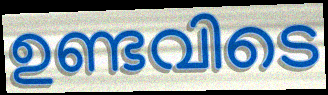
ഉണ്ടവിടെ